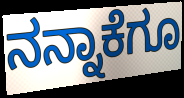
ನನ್ನಾಕೆಗೂ